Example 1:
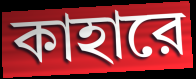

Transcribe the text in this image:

কাহারে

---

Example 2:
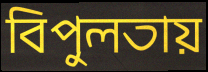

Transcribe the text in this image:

বিপুলতায়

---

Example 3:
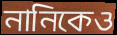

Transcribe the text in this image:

নানিকেও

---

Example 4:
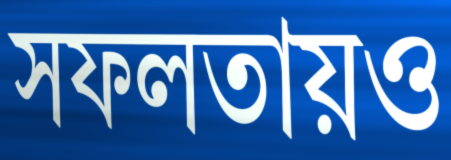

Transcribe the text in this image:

সফলতায়ও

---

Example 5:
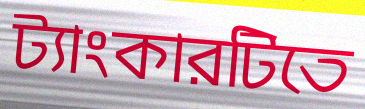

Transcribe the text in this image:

ট্যাংকারটিতে